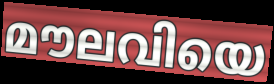
മൗലവിയെ